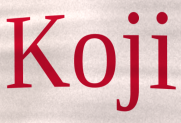
Koji